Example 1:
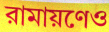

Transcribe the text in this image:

রামায়ণেও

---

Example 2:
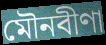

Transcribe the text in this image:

মৌনবীণা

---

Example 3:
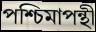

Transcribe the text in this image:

পশ্চিমাপন্থী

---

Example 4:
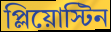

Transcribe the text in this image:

প্লিয়োস্টিন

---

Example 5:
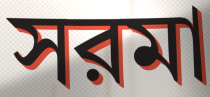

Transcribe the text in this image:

সরমা